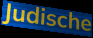
Judische